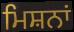
ਮਿਸ਼ਨਾਂ